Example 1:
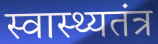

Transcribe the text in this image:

स्वास्थ्यतंत्र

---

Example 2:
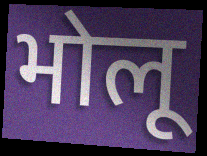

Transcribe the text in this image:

भोलू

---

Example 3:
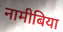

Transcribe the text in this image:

नामीबिया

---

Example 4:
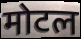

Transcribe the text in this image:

मोटल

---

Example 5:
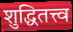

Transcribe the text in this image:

शुद्धितत्त्व